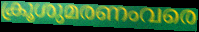
ക്രൂശുമരണംവരെ